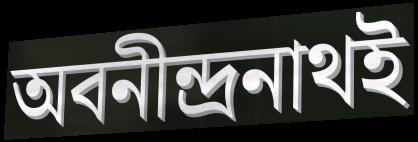
অবনীন্দ্রনাথই